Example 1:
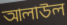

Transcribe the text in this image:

আলাউল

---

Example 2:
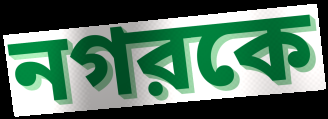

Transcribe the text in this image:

নগরকে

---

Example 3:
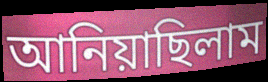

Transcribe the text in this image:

আনিয়াছিলাম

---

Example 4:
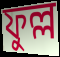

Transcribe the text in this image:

ফুল্ল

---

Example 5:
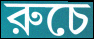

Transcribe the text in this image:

রুচে